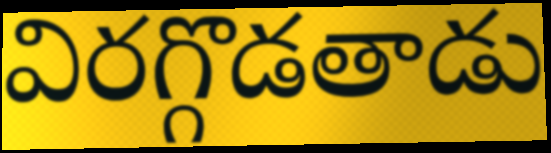
విరగ్గొడతాడు